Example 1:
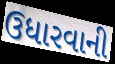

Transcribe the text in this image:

ઉધારવાની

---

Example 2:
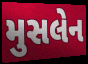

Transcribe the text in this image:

મુસલેન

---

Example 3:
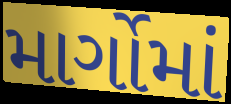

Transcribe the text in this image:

માર્ગોમાં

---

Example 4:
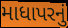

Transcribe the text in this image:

માધાપરનું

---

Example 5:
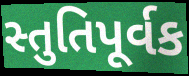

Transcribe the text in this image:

સ્તુતિપૂર્વક